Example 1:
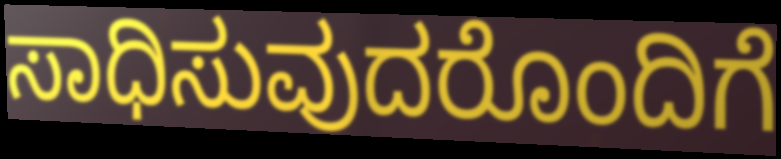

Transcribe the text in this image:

ಸಾಧಿಸುವುದರೊಂದಿಗೆ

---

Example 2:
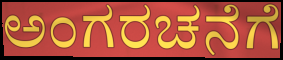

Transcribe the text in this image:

ಅಂಗರಚನೆಗೆ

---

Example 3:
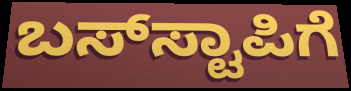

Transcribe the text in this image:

ಬಸ್‌ಸ್ಟಾಪಿಗೆ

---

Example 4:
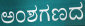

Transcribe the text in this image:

ಅಂಶಗಣದ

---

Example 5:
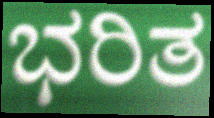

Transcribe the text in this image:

ಭರಿತ